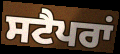
ਸਟੈਪਰਾਂ